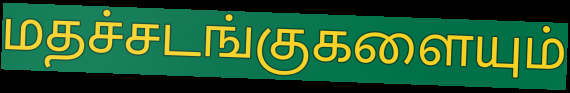
மதச்சடங்குகளையும்